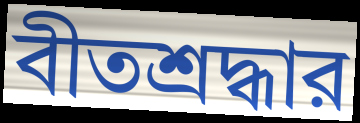
বীতশ্রদ্ধার